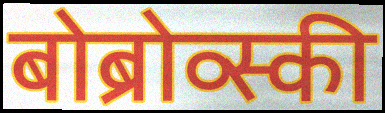
बोब्रोव्स्की